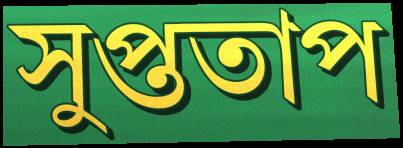
সুপ্ততাপ